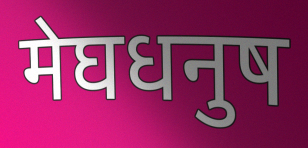
मेघधनुष